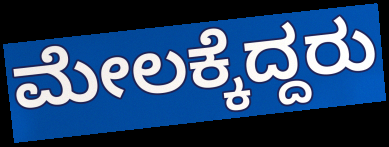
ಮೇಲಕ್ಕೆದ್ದರು